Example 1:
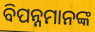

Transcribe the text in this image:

ବିପନ୍ନମାନଙ୍କ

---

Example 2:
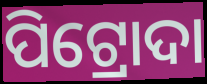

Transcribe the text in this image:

ପିଟ୍ରୋଦା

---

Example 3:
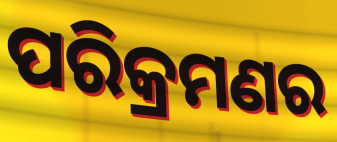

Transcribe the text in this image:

ପରିକ୍ରମଣର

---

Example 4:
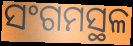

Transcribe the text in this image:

ସଂଗମସ୍ଥଳ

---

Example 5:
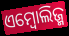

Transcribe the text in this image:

ଏମ୍ବୋଲିଜ୍ମ